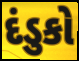
દંડુકો